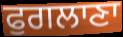
ਫੁਗਲਾਣਾ